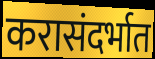
करासंदर्भात